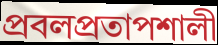
প্রবলপ্রতাপশালী